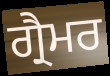
ਗ੍ਰੈਮਰ